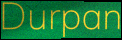
Durpan